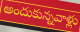
అందుకున్నవాళ్లు